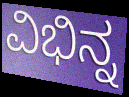
ವಿಭಿನ್ನ